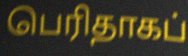
பெரிதாகப்